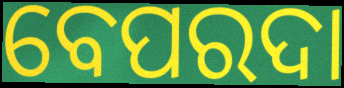
ବେପରଦା